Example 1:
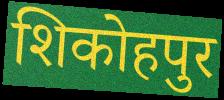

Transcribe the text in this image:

शिकोहपुर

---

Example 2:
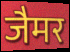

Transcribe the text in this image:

जैमर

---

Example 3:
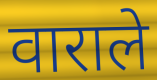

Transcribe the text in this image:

वाराले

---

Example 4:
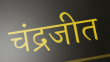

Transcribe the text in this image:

चंद्रजीत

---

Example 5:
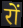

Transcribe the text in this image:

रों